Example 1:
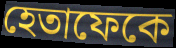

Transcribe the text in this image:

হেতাফেকে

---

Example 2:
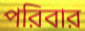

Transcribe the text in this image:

পরিবার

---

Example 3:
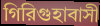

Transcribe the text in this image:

গিরিগুহাবাসী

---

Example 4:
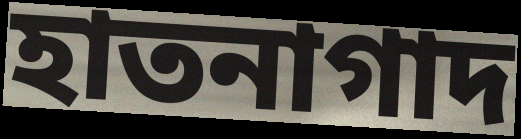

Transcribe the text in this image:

হাতনাগাদ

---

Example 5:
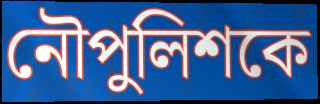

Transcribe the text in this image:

নৌপুলিশকে